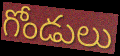
గోండులు